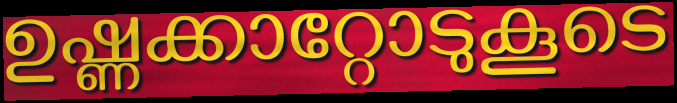
ഉഷ്ണക്കാറ്റോടുകൂടെ